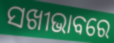
ସଖୀଭାବରେ